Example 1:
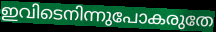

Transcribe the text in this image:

ഇവിടെനിന്നുപോകരുതേ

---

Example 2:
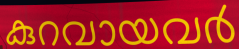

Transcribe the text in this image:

കുറവായവർ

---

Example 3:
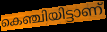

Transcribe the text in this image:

കെഞ്ചിയിട്ടാണ്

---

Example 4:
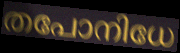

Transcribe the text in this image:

തപോനിധേ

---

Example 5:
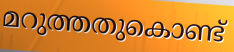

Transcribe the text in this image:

മറുത്തതുകൊണ്ട്